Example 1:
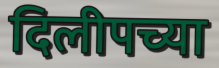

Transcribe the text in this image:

दिलीपच्या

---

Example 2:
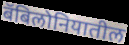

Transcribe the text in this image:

बॅबिलोनियातील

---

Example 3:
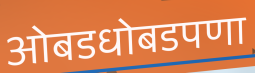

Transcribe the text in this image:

ओबडधोबडपणा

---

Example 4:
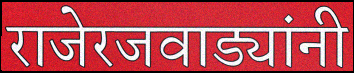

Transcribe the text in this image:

राजेरजवाड्यांनी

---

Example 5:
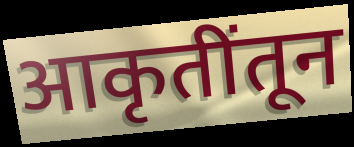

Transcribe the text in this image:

आकृतींतून